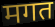
मगत